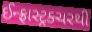
ઈન્ફ્રાસ્ટ્રક્ચરથી